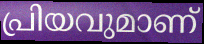
പ്രിയവുമാണ്